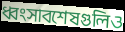
ধ্বংসাবশেষগুলিও